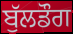
ਬੁੱਲਡੌਗ